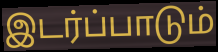
இடர்ப்பாடும்